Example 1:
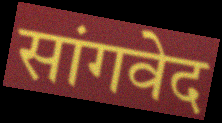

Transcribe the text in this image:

सांगवेद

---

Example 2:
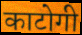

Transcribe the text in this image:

काटोगी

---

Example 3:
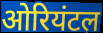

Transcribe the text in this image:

ओरियंटल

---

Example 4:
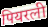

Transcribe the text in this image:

पियरली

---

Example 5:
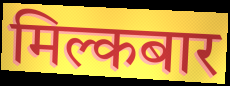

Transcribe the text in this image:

मिल्कबार